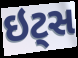
ઇટ્સ